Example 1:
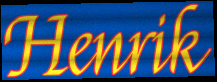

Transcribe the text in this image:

Henrik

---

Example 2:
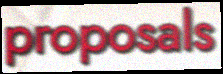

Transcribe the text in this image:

proposals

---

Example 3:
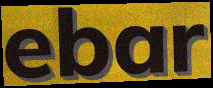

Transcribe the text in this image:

ebar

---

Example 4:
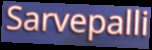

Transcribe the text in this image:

Sarvepalli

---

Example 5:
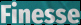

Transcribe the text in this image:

Finesse